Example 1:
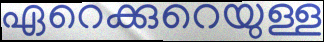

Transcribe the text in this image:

ഏറെക്കുറെയുള്ള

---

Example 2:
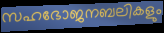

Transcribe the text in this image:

സഹഭോജനബലികളും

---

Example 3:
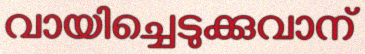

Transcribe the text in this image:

വായിച്ചെടുക്കുവാന്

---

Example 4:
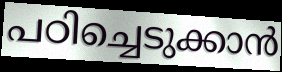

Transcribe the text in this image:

പഠിച്ചെടുക്കാൻ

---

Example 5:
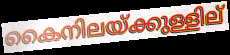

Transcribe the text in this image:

കൈനിലയ്ക്കുള്ളില്